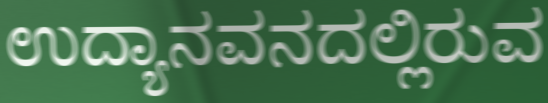
ಉದ್ಯಾನವನದಲ್ಲಿರುವ